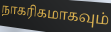
நாகரிகமாகவும்